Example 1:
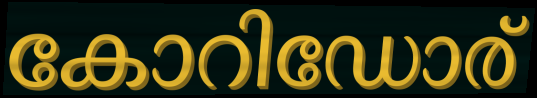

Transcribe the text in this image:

കോറിഡോര്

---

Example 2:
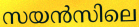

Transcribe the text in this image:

സയൻസിലെ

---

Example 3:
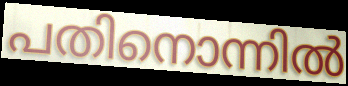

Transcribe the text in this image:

പതിനൊന്നിൽ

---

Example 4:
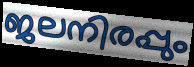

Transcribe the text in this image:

ജലനിരപ്പും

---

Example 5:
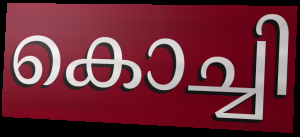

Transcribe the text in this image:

കൊച്ചി